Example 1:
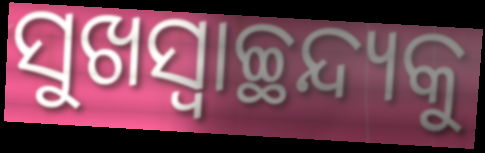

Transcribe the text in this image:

ସୁଖସ୍ଵାଚ୍ଛନ୍ଦ୍ୟକୁ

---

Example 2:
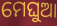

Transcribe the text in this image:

ମେଘୁଆ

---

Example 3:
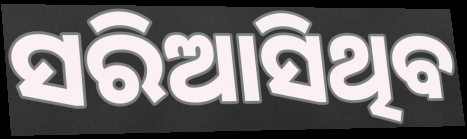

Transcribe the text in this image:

ସରିଆସିଥିବ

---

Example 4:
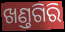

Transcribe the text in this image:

ଖଣ୍ତଗିରି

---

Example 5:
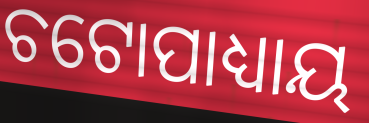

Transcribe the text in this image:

ଚଟୋପାଧ୍ୟାୟ